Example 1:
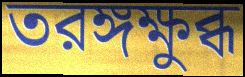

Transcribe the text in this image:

তরঙ্গক্ষুব্ধ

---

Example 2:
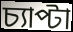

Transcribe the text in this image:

চ্যাপ্টা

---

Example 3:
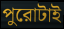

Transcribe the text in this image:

পুরোটাই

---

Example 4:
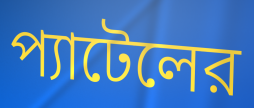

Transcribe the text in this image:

প্যাটেলের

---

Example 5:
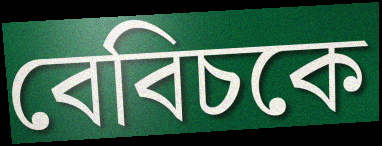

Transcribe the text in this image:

বেবিচকে